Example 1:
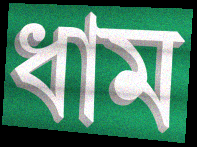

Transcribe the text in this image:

ধাম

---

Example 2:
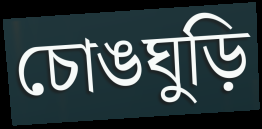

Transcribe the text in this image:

চোঙঘুড়ি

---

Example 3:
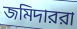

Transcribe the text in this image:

জমিদাররা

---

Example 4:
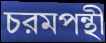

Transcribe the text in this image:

চরমপন্থী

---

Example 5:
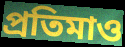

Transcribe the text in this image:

প্রতিমাও